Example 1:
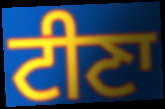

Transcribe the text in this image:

ਟੀਣਾ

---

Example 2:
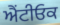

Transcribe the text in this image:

ਐਂਟੀਓਕ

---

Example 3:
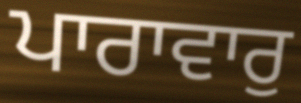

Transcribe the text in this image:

ਪਾਰਾਵਾਰੁ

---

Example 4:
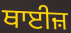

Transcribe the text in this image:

ਥਾਈਜ਼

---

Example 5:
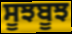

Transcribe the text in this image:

ਸੂਝਬੂਝ